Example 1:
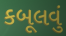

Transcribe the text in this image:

કબૂલવું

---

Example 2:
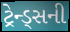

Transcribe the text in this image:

ટ્રેન્ડ્સની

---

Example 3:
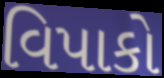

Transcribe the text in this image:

વિપાકો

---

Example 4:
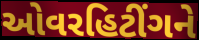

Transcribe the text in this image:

ઓવરહિટીંગને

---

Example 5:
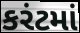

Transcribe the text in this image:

કરંટમાં